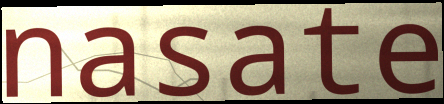
nasate